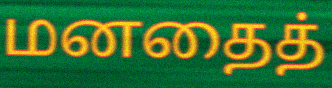
மனதைத்